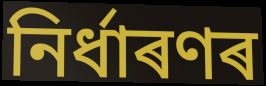
নিৰ্ধাৰণৰ